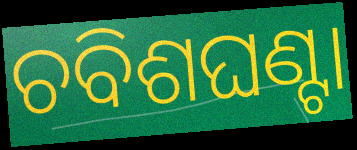
ଚବିଶଘଣ୍ଟା